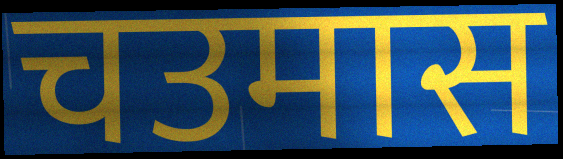
चउमास